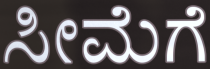
ಸೀಮೆಗೆ